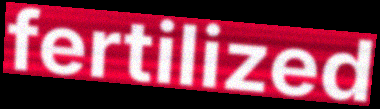
fertilized